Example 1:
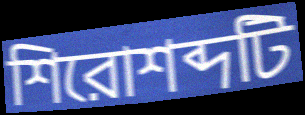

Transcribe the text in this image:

শিরোশব্দটি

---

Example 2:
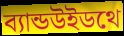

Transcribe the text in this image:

ব্যান্ডউইডথে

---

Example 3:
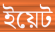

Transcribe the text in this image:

ইয়েট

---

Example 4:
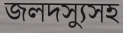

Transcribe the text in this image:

জলদস্যুসহ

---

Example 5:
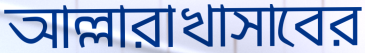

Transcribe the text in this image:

আল্লারাখাসাবের